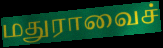
மதுராவைச்